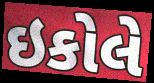
ઇકોલે